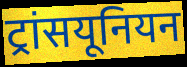
ट्रांसयूनियन